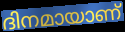
ദിനമായാണ്